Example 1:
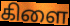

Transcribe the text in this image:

கிளை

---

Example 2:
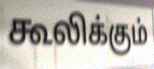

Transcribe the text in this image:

கூலிக்கும்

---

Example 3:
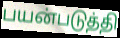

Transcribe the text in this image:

பயன்படுத்தி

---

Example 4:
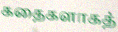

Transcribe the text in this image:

கதைகளாகத்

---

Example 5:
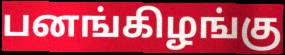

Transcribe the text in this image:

பனங்கிழங்கு